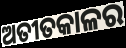
ଅତୀତକାଳର